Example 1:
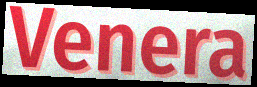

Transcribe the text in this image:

Venera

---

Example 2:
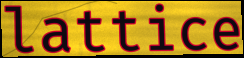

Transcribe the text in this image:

lattice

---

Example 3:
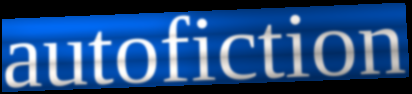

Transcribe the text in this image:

autofiction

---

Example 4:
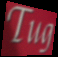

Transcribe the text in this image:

Tug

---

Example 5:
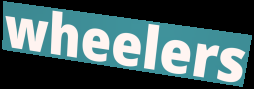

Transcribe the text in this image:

wheelers